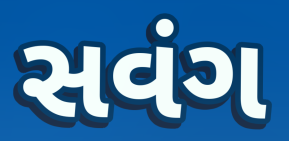
સવંગ